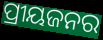
ପ୍ରୀୟଜନର